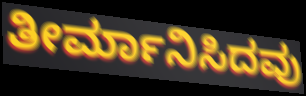
ತೀರ್ಮಾನಿಸಿದವು